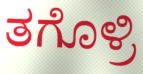
ತಗೊಳ್ರಿ